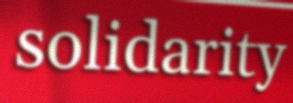
solidarity